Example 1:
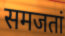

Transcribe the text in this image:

समजतां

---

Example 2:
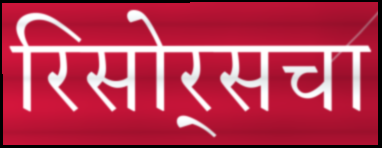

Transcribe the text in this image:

रिसोर्सचा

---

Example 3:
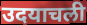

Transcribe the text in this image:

उदयाचली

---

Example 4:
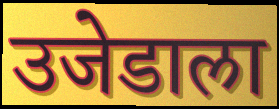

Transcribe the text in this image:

उजेडाला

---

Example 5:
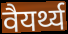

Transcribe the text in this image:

वैयर्थ्य